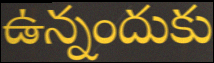
ఉన్నందుకు